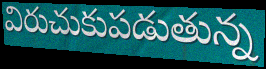
విరుచుకుపడుతున్న